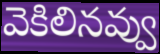
వెకిలినవ్వు